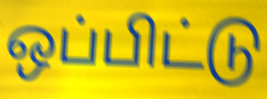
ஒப்பிட்டு